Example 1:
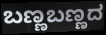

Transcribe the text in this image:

ಬಣ್ಣಬಣ್ಣದ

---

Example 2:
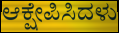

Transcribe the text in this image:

ಆಕ್ಷೇಪಿಸಿದಳು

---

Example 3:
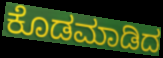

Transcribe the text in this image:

ಕೊಡಮಾಡಿದ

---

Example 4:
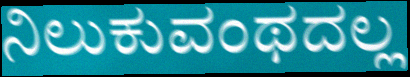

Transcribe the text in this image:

ನಿಲುಕುವಂಥದಲ್ಲ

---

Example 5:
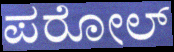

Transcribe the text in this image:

ಪರೋಲ್